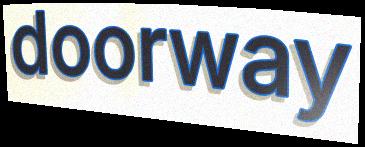
doorway